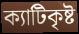
ক্যাটিকৃষ্ট